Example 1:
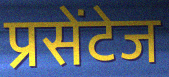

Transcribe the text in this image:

प्रसेंटेज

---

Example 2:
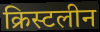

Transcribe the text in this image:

क्रिस्टलीन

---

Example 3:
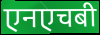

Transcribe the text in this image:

एनएचबी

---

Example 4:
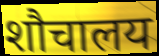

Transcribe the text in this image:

शौचालय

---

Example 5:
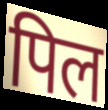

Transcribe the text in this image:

पिल